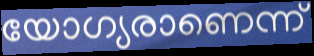
യോഗ്യരാണെന്ന്